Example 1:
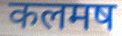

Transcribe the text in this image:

कलमष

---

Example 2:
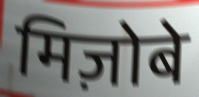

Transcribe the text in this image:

मिज़ोबे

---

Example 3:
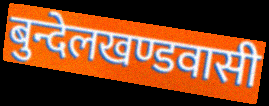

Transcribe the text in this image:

बुन्देलखण्डवासी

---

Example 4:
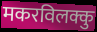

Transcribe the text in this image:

मकरविलक्कु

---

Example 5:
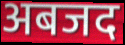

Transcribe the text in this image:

अबजद